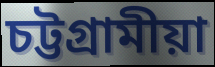
চট্টগ্ৰামীয়া